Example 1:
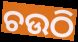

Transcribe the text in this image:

ଚଉଠି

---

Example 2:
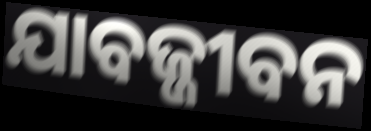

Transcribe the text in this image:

ଯାବଜ୍ଜୀବନ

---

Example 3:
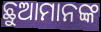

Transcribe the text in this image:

ଛୁଆମାନଙ୍କ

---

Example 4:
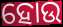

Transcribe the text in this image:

ହୋଉ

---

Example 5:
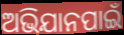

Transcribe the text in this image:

ଅଭିଯାନପାଇଁ